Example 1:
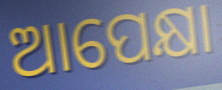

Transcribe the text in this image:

ଆପେକ୍ଷା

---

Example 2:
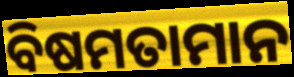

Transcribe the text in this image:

ବିଷମତାମାନ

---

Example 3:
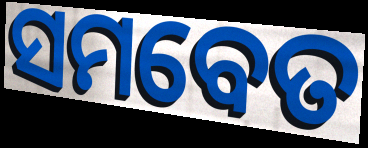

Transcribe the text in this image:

ସମବେତ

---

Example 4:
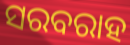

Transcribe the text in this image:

ସରବରାହ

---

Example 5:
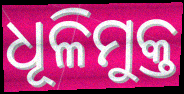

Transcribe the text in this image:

ଧୂଳିମୁକ୍ତ